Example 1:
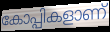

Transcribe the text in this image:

കോപ്പികളാണ്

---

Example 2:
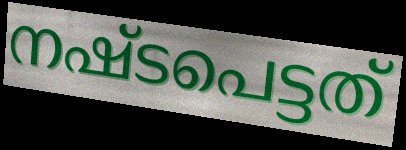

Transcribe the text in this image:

നഷ്ടപെട്ടത്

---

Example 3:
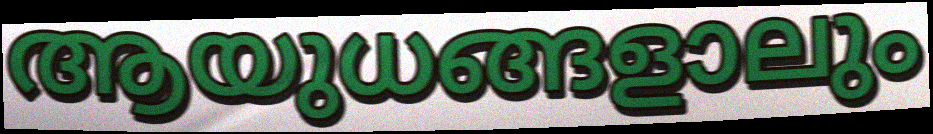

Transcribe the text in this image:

ആയുധങ്ങളാലും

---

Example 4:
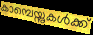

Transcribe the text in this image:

കാമ്പെയ്നുകൾക്ക്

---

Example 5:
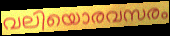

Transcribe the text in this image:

വലിയൊരവസരം